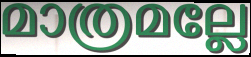
മാത്രമല്ലേ